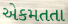
એકમતતા